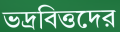
ভদ্রবিত্তদের